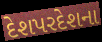
દેશપરદેશના